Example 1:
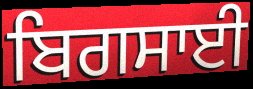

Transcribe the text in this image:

ਬਿਗਸਾਈ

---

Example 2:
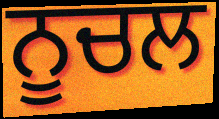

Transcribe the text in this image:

ਨੂਚਲ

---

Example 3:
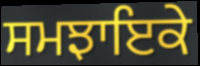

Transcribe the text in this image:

ਸਮਝਾਇਕੇ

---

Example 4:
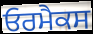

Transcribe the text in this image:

ਓਰਮੈਕਸ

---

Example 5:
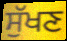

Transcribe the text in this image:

ਸੁੱਖਣ